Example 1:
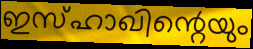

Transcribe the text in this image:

ഇസ്ഹാഖിന്റെയും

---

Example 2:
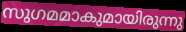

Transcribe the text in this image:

സുഗമമാകുമായിരുന്നു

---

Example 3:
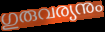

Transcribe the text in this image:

ഗുരുവര്യനും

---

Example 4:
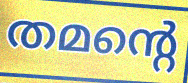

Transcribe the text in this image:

തമന്റെ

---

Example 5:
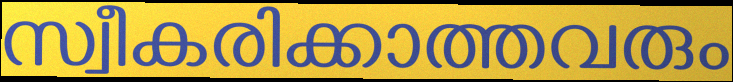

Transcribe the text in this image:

സ്വീകരിക്കാത്തവരും